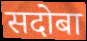
सदोबा